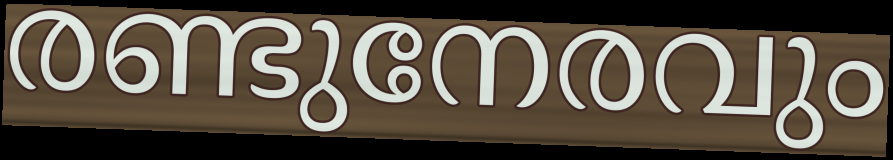
രണ്ടുനേരവും